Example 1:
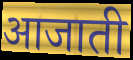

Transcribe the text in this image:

आजाती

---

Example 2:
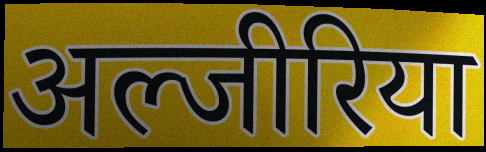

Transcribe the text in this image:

अल्जीरिया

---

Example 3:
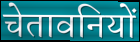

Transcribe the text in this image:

चेतावनियों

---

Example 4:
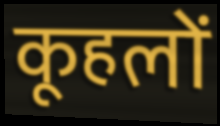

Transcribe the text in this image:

कूहलों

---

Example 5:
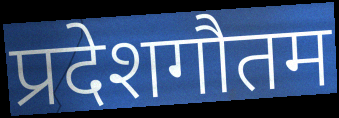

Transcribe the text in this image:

प्रदेशगौतम